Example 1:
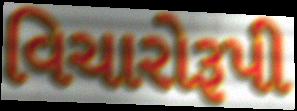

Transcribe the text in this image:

વિચારોરૂપી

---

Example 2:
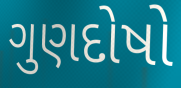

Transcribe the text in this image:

ગુણદોષો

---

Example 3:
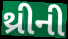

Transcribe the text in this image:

થ્રીની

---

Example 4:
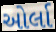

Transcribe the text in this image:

ઓર્લા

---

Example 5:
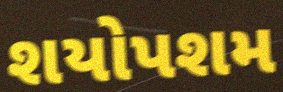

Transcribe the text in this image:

શયોપશમ